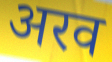
अरव